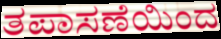
ತಪಾಸಣೆಯಿಂದ